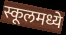
स्कूलमध्ये